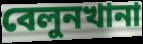
বেলুনখানা